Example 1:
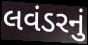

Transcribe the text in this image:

લવંડરનું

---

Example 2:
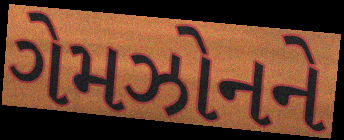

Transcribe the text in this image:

ગેમઝોનને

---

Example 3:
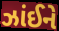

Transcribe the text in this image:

ઝાંઈને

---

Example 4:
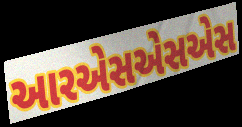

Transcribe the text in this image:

આરએસએસએસ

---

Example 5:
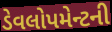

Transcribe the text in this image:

ડેવલોપમેન્ટની